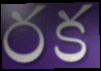
రక